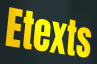
Etexts